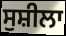
ਸੁਸ਼ੀਲਾ